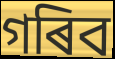
গৰিব